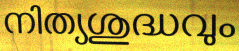
നിത്യശുദ്ധവും